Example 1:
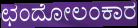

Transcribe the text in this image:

ಛಂದೋಲಂಕಾರ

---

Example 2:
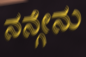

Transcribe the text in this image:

ನನ್ಗೇನು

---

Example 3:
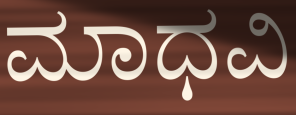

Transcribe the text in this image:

ಮಾಧವಿ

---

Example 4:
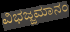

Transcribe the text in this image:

ವಿಭಜ್ಜಮಾನಂ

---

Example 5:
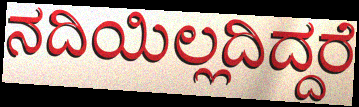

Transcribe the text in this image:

ನದಿಯಿಲ್ಲದಿದ್ದರೆ